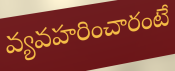
వ్యవహరించారంటే